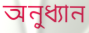
অনুধ্যান